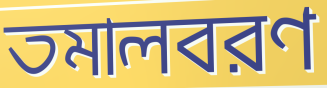
তমালবরণ